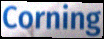
Corning